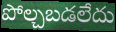
పోల్చబడలేదు